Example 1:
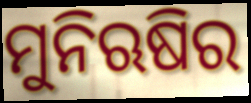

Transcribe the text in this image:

ମୁନିଋଷିର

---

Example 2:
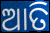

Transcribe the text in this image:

ଆତି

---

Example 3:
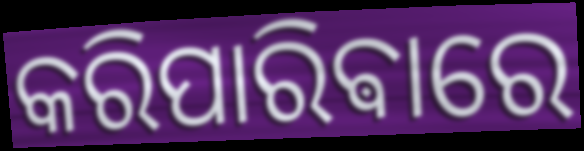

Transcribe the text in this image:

କରିପାରିଵାରେ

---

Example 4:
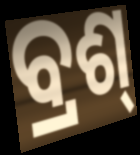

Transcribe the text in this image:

ବ୍ରଶ୍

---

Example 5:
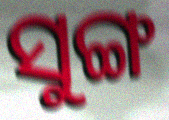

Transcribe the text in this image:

ସୁଙ୍ଗ